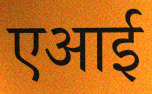
एआई